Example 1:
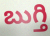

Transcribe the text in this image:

బుగ్తి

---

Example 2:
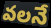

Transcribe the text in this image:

వలనే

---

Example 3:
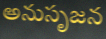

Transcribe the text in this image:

అనుసృజన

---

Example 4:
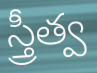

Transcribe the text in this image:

స్త్రీత్వ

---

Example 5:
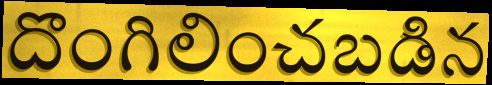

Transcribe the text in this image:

దొంగిలించబడిన